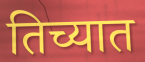
तिच्यात